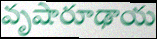
వృషారూఢాయ